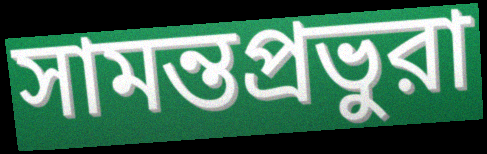
সামন্তপ্রভুরা